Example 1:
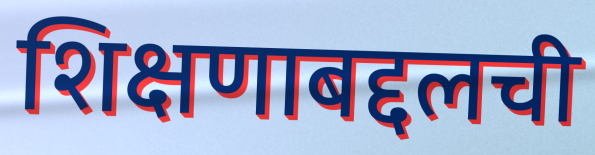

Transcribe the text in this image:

शिक्षणाबद्दलची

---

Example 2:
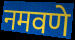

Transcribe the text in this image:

नमवणे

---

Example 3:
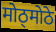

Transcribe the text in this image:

मोठ्मोठे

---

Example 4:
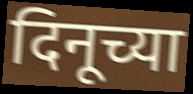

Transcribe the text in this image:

दिनूच्या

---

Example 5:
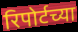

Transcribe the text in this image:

रिपोर्टच्या